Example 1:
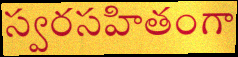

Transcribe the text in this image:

స్వరసహితంగా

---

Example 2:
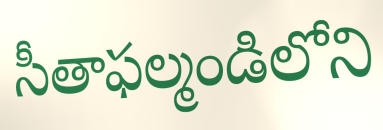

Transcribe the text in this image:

సీతాఫల్మండిలోని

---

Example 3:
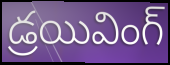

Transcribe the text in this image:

డ్రయివింగ్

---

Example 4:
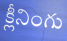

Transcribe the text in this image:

క్లీనింగు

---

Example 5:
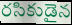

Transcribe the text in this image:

రసికుడైన